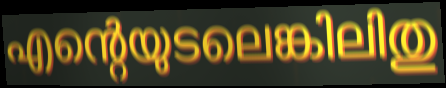
എന്റെയുടലെങ്കിലിതു